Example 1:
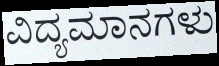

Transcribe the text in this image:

ವಿದ್ಯಮಾನಗಳು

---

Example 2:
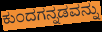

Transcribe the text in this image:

ಕುಂದಗನ್ನಡವನ್ನು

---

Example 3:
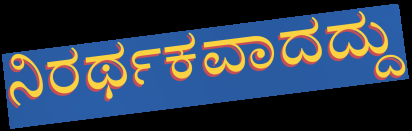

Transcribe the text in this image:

ನಿರರ್ಥಕವಾದದ್ದು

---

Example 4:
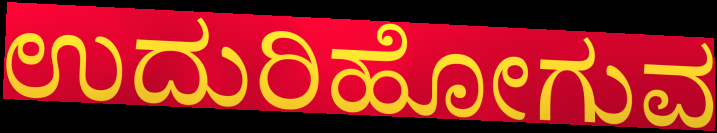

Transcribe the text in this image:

ಉದುರಿಹೋಗುವ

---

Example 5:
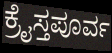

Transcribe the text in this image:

ಕ್ರೈಸ್ತಪೂರ್ವ